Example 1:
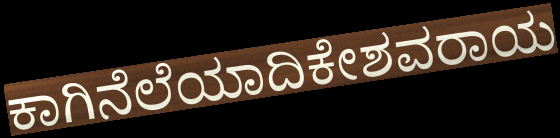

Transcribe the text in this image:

ಕಾಗಿನೆಲೆಯಾದಿಕೇಶವರಾಯ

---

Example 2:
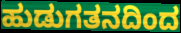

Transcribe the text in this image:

ಹುಡುಗತನದಿಂದ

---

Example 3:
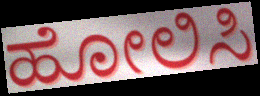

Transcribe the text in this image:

ಹೋಲಿಸಿ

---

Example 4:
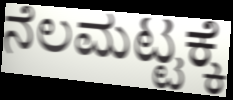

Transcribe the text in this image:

ನೆಲಮಟ್ಟಕ್ಕೆ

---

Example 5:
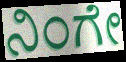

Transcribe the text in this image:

ನಿಂಗೇ